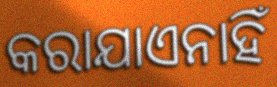
କରାଯାଏନାହିଁ